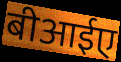
बीआईए